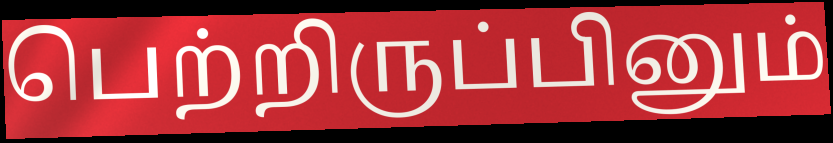
பெற்றிருப்பினும்